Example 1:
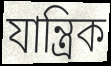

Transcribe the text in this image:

যান্ত্রিক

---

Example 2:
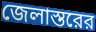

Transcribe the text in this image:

জেলাস্তরের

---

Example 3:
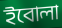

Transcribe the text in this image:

ইবোলা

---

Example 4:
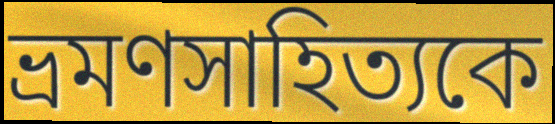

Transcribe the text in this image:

ভ্রমণসাহিত্যকে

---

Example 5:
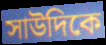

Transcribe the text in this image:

সাউদিকে